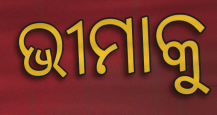
ଭୀମାକୁ